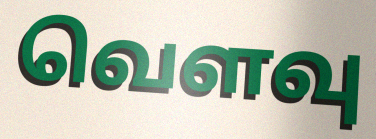
வெளவு